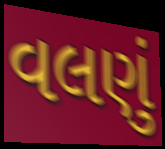
વલણું